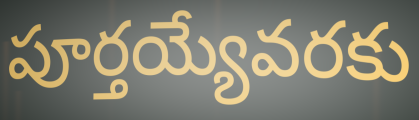
పూర్తయ్యేవరకు